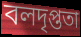
বলদৃপ্ততা